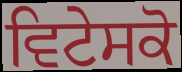
ਵਿਟੇਸਕੋ